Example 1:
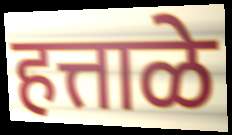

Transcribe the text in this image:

हत्ताळे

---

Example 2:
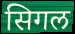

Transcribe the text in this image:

सिगल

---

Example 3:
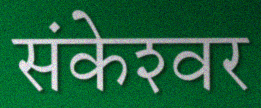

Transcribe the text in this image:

संकेश्वर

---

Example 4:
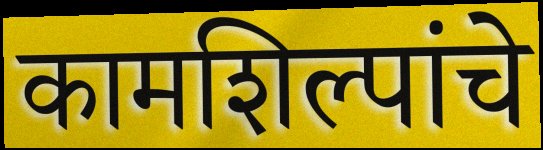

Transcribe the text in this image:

कामशिल्पांचे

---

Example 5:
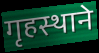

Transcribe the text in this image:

गृहस्थाने